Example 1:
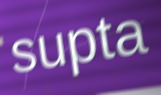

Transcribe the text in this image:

supta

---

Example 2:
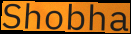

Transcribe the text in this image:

Shobha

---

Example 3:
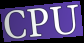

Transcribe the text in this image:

CPU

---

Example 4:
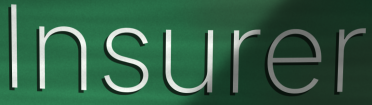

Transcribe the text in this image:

Insurer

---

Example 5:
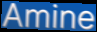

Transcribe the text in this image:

Amine